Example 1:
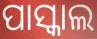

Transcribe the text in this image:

ପାସ୍କାଲ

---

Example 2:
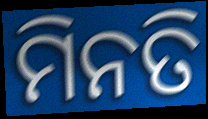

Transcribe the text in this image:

ମିନତି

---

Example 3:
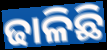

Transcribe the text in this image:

ଢାଳିଛି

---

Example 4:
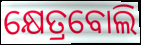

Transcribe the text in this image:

କ୍ଷେତ୍ରବୋଲି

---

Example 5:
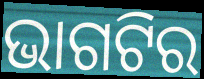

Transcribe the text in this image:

ଭାଗଟିର